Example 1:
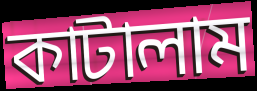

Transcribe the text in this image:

কাটালাম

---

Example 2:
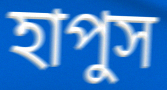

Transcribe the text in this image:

হাপুস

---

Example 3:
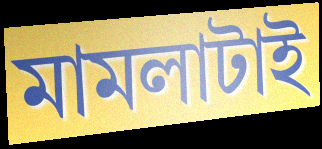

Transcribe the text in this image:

মামলাটাই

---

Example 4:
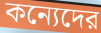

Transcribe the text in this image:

কন্যেদের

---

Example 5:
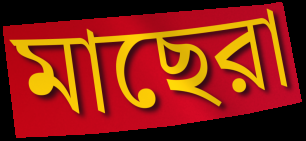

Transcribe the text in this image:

মাছেরা